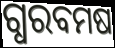
ଗ୍ଧରବମଷ